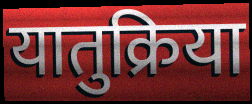
यातुक्रिया